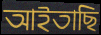
আইতাছি